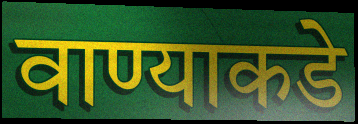
वाण्याकडे